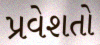
પ્રવેશતો